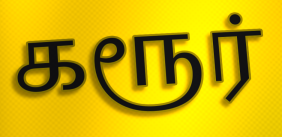
கரூர்